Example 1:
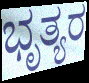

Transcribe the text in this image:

ಭೃತ್ಯರ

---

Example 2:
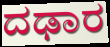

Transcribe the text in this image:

ದಢಾರ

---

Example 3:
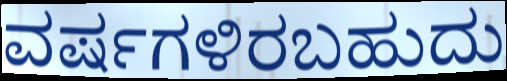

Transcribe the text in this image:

ವರ್ಷಗಳಿರಬಹುದು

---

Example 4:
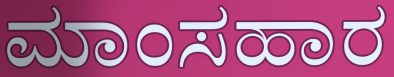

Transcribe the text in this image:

ಮಾಂಸಹಾರ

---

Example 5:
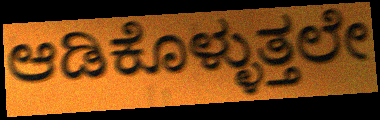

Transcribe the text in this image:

ಆಡಿಕೊಳ್ಳುತ್ತಲೇ